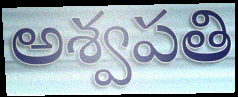
అశ్వపతి